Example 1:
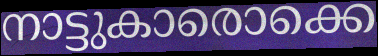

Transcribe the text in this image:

നാട്ടുകാരൊക്കെ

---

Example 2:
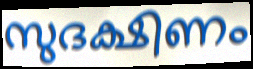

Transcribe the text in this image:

സുദക്ഷിണം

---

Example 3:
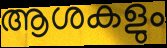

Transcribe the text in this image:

ആശകളും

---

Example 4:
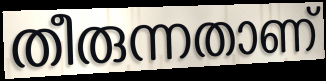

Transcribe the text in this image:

തീരുന്നതാണ്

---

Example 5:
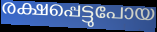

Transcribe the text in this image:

രക്ഷപ്പെട്ടുപോയ